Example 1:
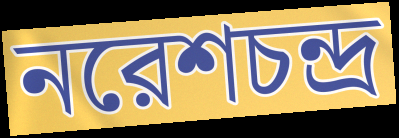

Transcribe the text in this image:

নরেশচন্দ্র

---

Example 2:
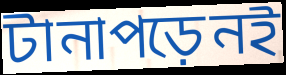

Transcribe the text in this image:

টানাপড়েনই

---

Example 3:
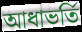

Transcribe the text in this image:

আধাভর্তি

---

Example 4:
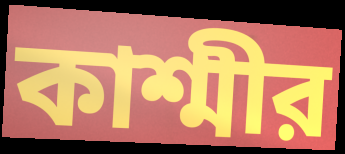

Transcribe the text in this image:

কাশ্মীর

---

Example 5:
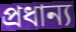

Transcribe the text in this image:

প্রধান্য